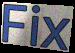
Fix